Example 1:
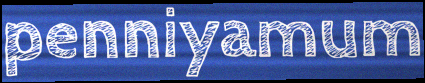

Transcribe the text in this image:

penniyamum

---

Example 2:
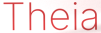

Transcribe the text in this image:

Theia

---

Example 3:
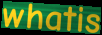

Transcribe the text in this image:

whatis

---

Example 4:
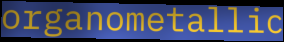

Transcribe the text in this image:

organometallic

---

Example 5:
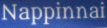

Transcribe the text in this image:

Nappinnai